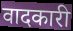
वादकारी